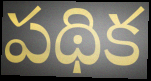
పథిక